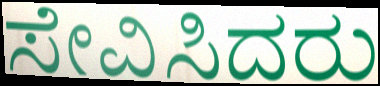
ಸೇವಿಸಿದರು